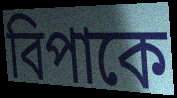
বিপাকে